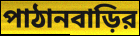
পাঠানবাড়ির